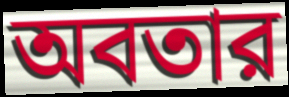
অবতার